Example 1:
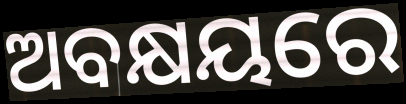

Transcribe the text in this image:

ଅବକ୍ଷୟରେ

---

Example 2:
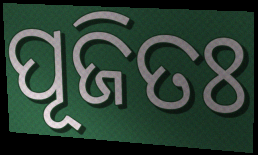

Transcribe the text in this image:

ପୂଜିତଃ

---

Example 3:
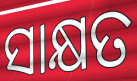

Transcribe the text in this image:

ସାକ୍ଷତ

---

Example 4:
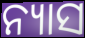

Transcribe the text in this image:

ନ୍ୟାସ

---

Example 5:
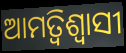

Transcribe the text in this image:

ଆମତ୍ବିଶ୍ୱାସୀ